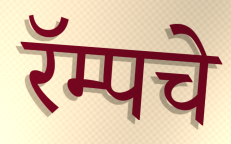
रॅम्पचे